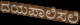
ದಯಪಾಲಿಸಲಿ